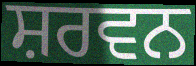
ਸ਼ਰਵਨ